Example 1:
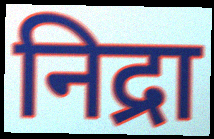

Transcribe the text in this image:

निद्रा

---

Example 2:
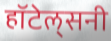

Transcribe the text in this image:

हॉटेल्सनी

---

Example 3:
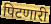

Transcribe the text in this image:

पिटणारी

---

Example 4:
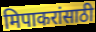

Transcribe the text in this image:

मिपाकरांसाठी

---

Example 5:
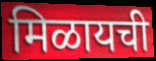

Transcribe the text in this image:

मिळायची